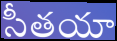
సీతయా